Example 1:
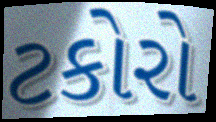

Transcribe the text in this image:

ટકોરો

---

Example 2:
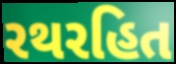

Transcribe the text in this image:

રથરહિત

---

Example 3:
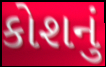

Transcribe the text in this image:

કોશનું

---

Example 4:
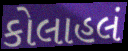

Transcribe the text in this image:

કોલાહલં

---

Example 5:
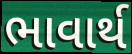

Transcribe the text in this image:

ભાવાર્થ